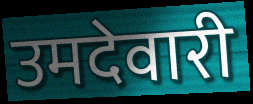
उमदेवारी